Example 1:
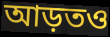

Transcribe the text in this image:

আড়তও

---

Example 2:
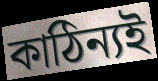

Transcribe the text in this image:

কাঠিন্যই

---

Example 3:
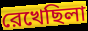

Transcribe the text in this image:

রেখেছিলা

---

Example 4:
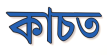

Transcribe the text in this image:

কাচত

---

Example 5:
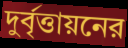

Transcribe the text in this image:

দুর্বৃত্তায়নের